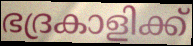
ഭദ്രകാളിക്ക്